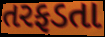
તરફડતા